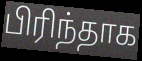
பிரிந்தாக